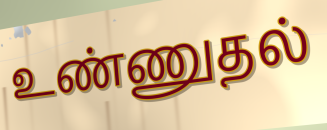
உண்ணுதல்